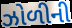
ઝોળીની